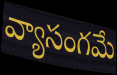
వ్యాసంగమే